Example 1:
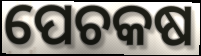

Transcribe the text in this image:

ପେଚକଷ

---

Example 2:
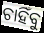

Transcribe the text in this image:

ଚାହିଁବୁ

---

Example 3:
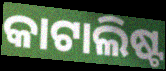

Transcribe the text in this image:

କାଟାଲିଷ୍ଟ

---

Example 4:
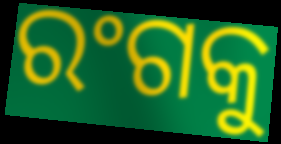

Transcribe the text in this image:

ରଂଗକୁ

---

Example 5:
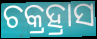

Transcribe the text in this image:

ଚକ୍ରହ୍ରାସ